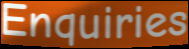
Enquiries